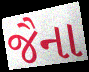
જૈના